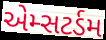
એમ્સટર્ડમ